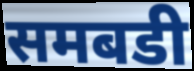
समबडी